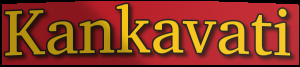
Kankavati